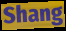
Shang